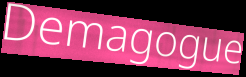
Demagogue